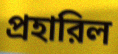
প্রহারিল